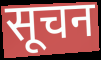
सूचन